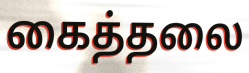
கைத்தலை